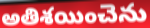
అతిశయించెను